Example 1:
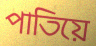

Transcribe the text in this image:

পাতিয়ে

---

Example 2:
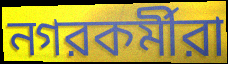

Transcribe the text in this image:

নগরকর্মীরা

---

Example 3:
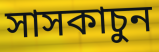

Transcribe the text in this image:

সাসকাচুন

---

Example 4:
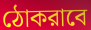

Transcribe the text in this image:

ঠোকরাবে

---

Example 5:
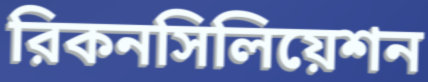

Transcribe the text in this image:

রিকনসিলিয়েশন